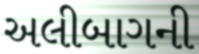
અલીબાગની